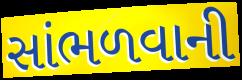
સાંભળવાની